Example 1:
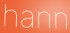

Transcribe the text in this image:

hann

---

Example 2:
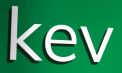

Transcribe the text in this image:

kev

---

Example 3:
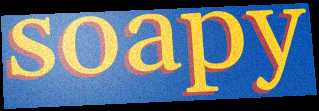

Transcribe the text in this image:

soapy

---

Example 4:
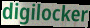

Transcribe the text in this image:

digilocker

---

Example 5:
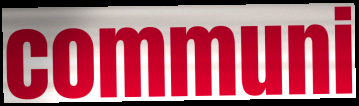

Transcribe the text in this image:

communi